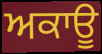
ਅਕਾਊ